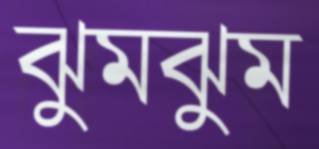
ঝুমঝুম